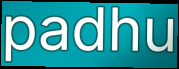
padhu